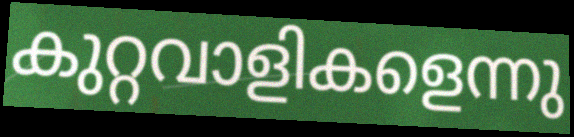
കുറ്റവാളികളെന്നു